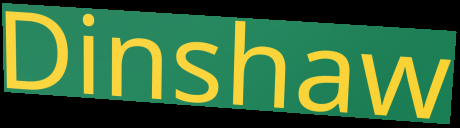
Dinshaw